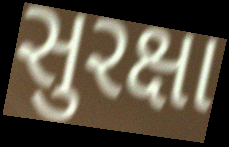
સુરક્ષા